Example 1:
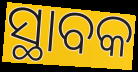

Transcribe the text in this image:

ସ୍ଥାବକ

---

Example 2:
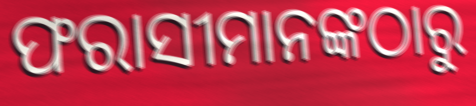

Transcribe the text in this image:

ଫରାସୀମାନଙ୍କଠାରୁ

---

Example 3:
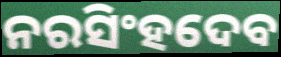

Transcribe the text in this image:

ନରସିଂହଦେବ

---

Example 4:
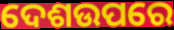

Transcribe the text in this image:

ଦେଶଉପରେ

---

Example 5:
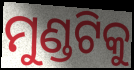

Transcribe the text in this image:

ମୁଣ୍ଡଟିକୁ